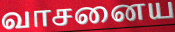
வாசனைய